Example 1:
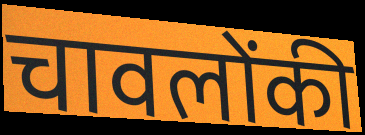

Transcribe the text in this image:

चावलोंकी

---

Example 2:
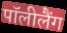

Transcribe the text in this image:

पॉलीलैंग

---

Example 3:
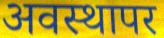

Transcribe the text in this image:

अवस्थापर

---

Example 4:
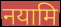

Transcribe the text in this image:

नयामि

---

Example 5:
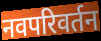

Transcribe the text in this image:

नवपरिवर्तन